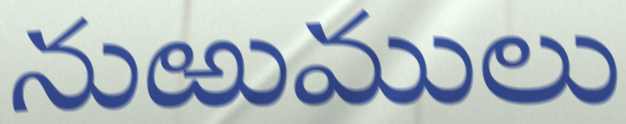
నుఱుములు